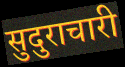
सुदुराचारी